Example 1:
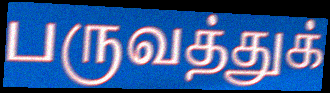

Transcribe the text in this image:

பருவத்துக்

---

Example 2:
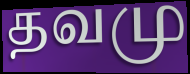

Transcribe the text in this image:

தவமு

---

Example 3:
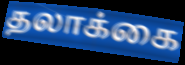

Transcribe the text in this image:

தலாக்கை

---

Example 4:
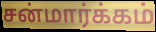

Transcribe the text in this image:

சன்மார்க்கம்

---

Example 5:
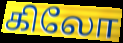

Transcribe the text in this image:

கிலோ